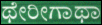
ಥೇರೀಗಾಥಾ